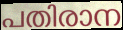
പതിരാന